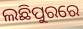
ଲଛିପୁରରେ